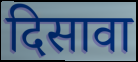
दिसावा